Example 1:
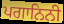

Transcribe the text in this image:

ਪਗਾਨਿਨੀ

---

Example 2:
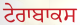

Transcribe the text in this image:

ਟੇਰਾਬਾਕਸ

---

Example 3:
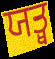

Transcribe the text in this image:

ਯਤ੍ਥ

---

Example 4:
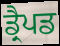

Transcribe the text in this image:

ਡ੍ਰੈਪਡ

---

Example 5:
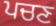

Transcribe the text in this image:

ਪਚਣ